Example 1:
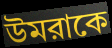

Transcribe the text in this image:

উমরাকে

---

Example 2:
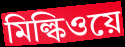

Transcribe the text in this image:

মিল্কিওয়ে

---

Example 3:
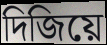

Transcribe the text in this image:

দিজিয়ে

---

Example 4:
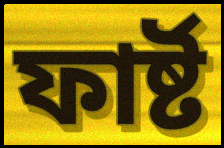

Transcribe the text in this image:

ফার্ষ্ট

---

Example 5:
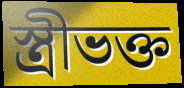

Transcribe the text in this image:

স্ত্রীভক্ত